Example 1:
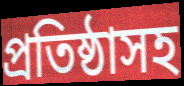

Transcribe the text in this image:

প্রতিষ্ঠাসহ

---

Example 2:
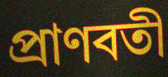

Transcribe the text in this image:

প্রাণবতী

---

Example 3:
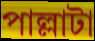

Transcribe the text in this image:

পাল্লাটা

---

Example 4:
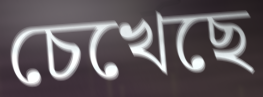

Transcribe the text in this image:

চেখেছে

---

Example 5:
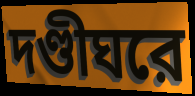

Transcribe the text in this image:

দণ্ডীঘরে